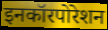
इनकॉरपोरेशन